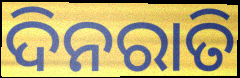
ଦିନରାତି